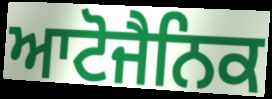
ਆਟੋਜੈਨਿਕ